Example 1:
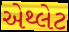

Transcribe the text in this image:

એથ્લેટ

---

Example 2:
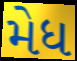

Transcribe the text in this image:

મેધ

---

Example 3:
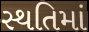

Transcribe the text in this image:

સ્થતિમાં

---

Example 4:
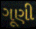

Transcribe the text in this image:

ગૂણી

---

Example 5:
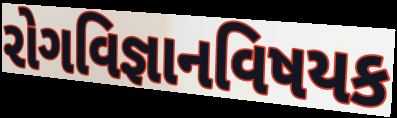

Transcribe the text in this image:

રોગવિજ્ઞાનવિષયક